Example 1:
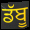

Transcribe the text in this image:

ਡੱਬੂ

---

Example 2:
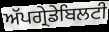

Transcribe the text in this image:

ਅੱਪਗ੍ਰੇਡੇਬਿਲਟੀ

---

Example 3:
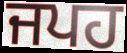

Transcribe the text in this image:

ਜਪਹ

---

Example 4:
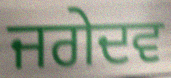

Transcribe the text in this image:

ਜਗੇਦਵ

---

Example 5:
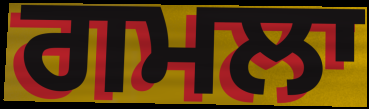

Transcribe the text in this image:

ਗਮਲਾ